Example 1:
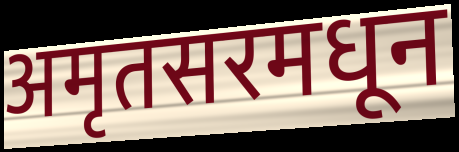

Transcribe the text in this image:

अमृतसरमधून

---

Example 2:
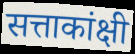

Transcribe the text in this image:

सत्ताकांक्षी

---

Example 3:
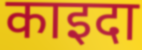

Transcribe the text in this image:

काइदा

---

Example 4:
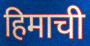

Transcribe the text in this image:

हिमाची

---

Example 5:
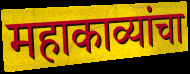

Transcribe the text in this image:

महाकाव्यांचा